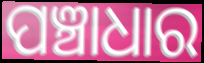
ପଞ୍ଚାଧାର